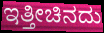
ಇತ್ತೀಚಿನದು